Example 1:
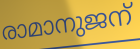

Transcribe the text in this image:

രാമാനുജന്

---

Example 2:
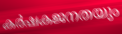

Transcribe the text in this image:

കർഷകജനതയും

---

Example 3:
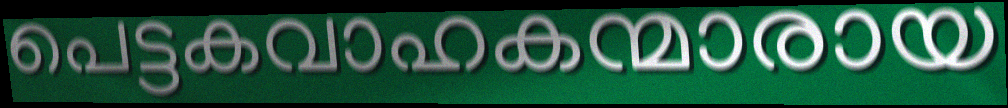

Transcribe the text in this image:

പെട്ടകവാഹകന്മാരായ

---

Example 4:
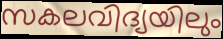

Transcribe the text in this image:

സകലവിദ്യയിലും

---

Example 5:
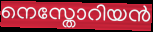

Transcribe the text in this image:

നെസ്തോറിയൻ